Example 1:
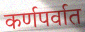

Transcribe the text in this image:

कर्णपर्वात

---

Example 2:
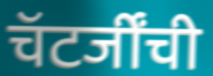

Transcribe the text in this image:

चॅटर्जींची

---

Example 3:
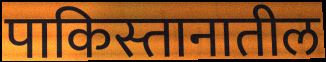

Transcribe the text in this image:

पाकिस्‍तानातील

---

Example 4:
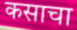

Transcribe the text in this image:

कसाचा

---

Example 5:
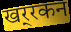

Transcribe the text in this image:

खर्रकन